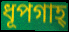
ধূপগাহ্